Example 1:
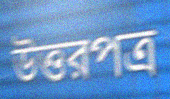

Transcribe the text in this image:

উত্তরপত্র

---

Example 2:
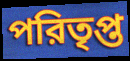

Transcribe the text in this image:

পরিতৃপ্ত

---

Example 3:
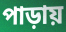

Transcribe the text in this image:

পাড়ায়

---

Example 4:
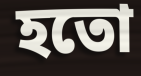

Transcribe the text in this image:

হতো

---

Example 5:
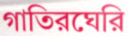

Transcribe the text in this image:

গাতিরঘেরি